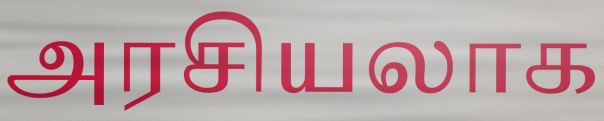
அரசியலாக